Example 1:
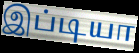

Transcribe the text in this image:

இப்டியா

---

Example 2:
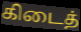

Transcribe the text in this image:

கிடைத்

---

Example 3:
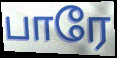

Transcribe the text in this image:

பாரே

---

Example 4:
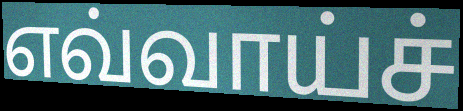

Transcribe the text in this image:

எவ்வாய்ச்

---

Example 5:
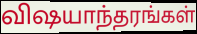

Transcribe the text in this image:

விஷயாந்தரங்கள்